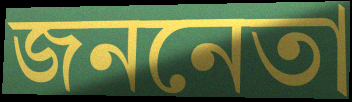
জননেতা